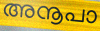
അനൂപാ